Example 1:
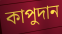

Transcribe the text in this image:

কাপুদান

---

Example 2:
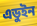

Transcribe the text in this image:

এডুইন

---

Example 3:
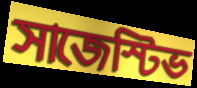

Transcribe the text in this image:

সাজেস্টিভ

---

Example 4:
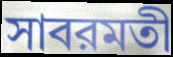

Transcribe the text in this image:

সাবরমতী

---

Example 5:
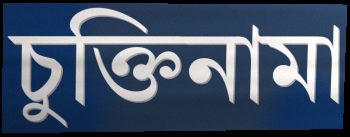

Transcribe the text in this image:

চুক্তিনামা